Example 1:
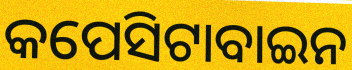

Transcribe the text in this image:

କପେସିଟାବାଇନ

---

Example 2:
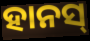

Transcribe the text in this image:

ହାନସ୍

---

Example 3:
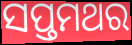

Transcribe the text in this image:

ସପ୍ତମଥର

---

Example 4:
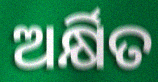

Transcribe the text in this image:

ଅର୍କ୍ଷିତ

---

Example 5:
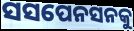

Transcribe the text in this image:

ସସପେନସନକୁ